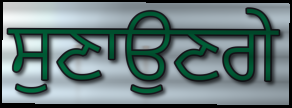
ਸੁਣਾਉਣਗੇ